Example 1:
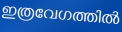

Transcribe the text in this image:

ഇത്രവേഗത്തിൽ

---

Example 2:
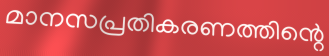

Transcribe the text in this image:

മാനസപ്രതികരണത്തിന്റെ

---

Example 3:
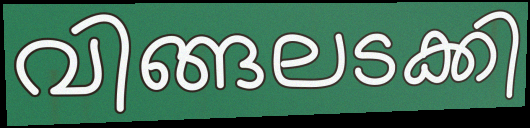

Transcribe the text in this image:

വിങ്ങലടക്കി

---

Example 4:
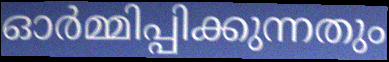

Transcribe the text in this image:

ഓർമ്മിപ്പിക്കുന്നതും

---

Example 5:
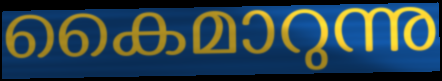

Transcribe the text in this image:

കൈമാറുന്നു